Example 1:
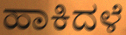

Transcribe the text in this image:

ಹಾಕಿದಳೆ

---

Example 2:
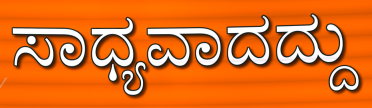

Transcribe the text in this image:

ಸಾಧ್ಯವಾದದ್ದು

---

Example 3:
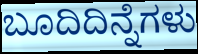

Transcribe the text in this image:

ಬೂದಿದಿನ್ನೆಗಳು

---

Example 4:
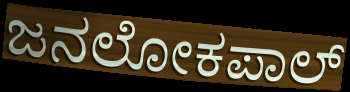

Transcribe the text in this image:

ಜನಲೋಕಪಾಲ್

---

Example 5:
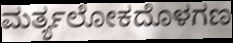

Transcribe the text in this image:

ಮರ್ತ್ಯಲೋಕದೊಳಗಣ